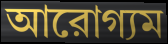
আরোগ্যম